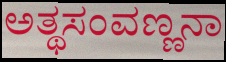
ಅತ್ಥಸಂವಣ್ಣನಾ